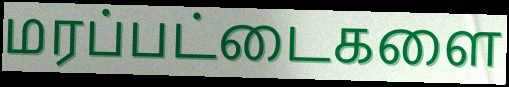
மரப்பட்டைகளை